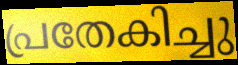
പ്രതേകിച്ചു